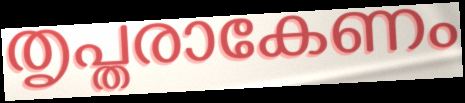
തൃപ്തരാകേണം